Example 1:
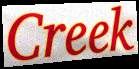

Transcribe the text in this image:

Creek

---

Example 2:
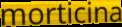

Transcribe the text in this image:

morticina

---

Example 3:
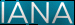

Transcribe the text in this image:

IANA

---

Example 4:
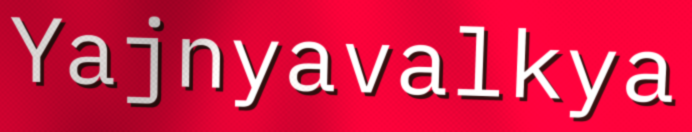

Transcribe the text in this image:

Yajnyavalkya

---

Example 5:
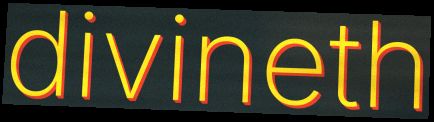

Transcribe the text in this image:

divineth